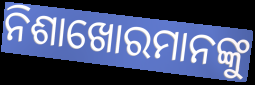
ନିଶାଖୋରମାନଙ୍କୁ